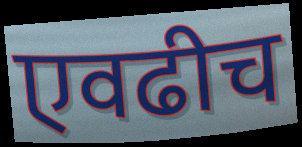
एवढीच